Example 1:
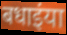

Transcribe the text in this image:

बधाइंया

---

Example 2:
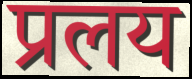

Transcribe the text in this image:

प्रलय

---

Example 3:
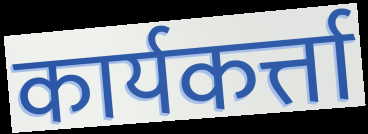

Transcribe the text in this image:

कार्यकर्त्ता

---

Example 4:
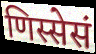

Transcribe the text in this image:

णिस्सेसं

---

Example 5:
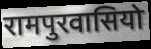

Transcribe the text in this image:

रामपुरवासियो